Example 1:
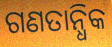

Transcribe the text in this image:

ଗଣତାନ୍ଧିକ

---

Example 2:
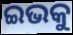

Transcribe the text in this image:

ଇଭକୁ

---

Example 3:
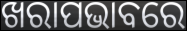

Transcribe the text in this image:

ଖରାପଭାବରେ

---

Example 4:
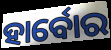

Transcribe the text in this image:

ହାର୍ବୋର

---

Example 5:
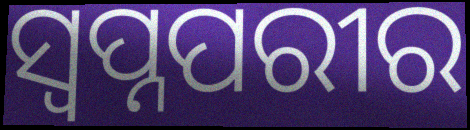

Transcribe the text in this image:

ସ୍ୱପ୍ନପରୀର